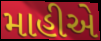
માહીએ